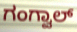
ಗಂಗ್ವಾಲ್